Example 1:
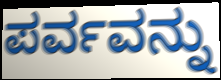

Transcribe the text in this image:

ಪರ್ವವನ್ನು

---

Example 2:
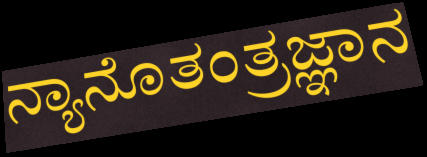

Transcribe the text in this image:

ನ್ಯಾನೊತಂತ್ರಜ್ಞಾನ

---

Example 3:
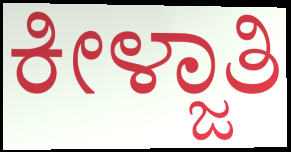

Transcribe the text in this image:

ಕೀಳ್ಜಾತಿ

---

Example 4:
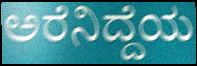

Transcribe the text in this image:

ಅರೆನಿದ್ದೆಯ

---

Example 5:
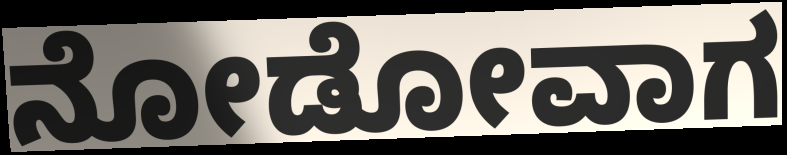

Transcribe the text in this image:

ನೋಡೋವಾಗ